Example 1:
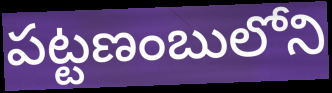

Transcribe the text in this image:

పట్టణంబులోని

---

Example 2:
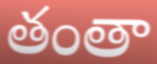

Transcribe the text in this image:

తంతా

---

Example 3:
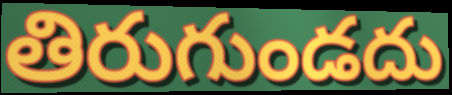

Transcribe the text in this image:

తిరుగుండదు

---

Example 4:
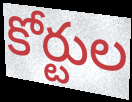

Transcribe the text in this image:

కోర్టుల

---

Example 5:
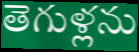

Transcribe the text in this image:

తెగుళ్లను